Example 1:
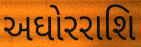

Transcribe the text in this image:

અઘોરરાશિ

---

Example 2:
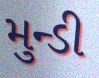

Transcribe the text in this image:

મુન્ડી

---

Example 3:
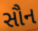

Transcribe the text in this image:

સૌન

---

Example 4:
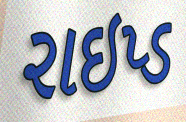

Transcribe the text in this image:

રાઇપ્ડ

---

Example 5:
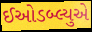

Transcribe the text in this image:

ઈઓડબ્લ્યુએ